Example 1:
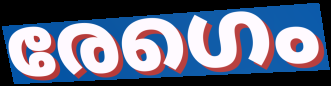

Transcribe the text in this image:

രേഗെം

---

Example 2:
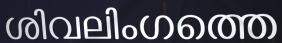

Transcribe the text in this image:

ശിവലിംഗത്തെ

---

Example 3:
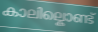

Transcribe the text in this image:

കാലില്കൊണ്ട്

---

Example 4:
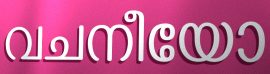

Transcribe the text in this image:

വചനീയോ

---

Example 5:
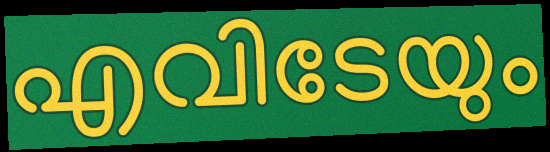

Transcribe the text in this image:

എവിടേയും